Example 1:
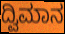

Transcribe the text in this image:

ದ್ವಿಮಾನ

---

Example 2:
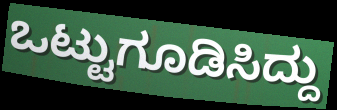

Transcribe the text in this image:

ಒಟ್ಟುಗೂಡಿಸಿದ್ದು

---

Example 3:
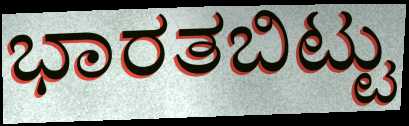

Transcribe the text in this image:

ಭಾರತಬಿಟ್ಟು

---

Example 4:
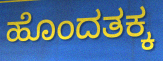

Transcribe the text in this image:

ಹೊಂದತಕ್ಕ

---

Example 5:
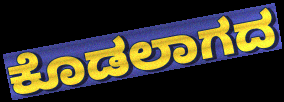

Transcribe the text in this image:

ಕೊಡಲಾಗದ